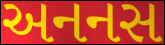
અનનસ